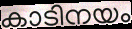
കാടിനയം